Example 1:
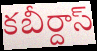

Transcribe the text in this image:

కబీర్దాస్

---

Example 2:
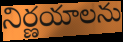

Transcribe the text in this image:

నిర్ణయాలను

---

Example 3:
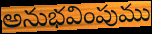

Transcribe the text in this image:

అనుభవింపుము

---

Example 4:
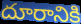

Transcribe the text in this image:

దూరానికి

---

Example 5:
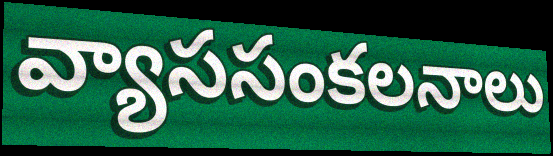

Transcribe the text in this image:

వ్యాససంకలనాలు